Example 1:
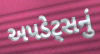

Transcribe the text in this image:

અપડેટ્સનું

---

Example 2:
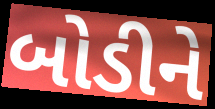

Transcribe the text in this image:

બોડીને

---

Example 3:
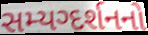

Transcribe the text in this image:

સમ્યગ્દર્શનનો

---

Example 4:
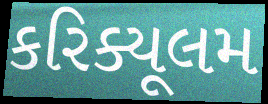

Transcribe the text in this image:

કરિક્યૂલમ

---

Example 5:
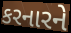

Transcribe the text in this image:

કરનારને